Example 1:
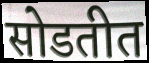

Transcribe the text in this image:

सोडतीत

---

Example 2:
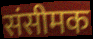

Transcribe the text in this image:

संसीमक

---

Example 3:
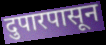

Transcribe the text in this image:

दुपारपासून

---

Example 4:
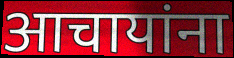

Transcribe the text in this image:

आचायांना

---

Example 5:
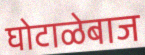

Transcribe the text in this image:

घोटाळेबाज